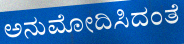
ಅನುಮೋದಿಸಿದಂತೆ